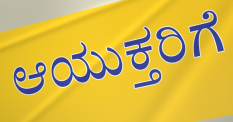
ಆಯುಕ್ತರಿಗೆ